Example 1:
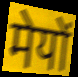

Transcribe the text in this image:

मेयों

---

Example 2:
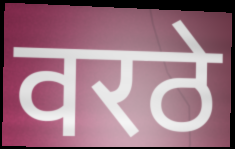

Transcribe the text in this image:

वरठे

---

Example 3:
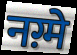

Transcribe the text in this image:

नग़्मे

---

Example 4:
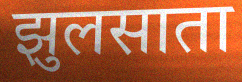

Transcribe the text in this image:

झुलसाता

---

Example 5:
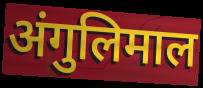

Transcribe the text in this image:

अंगुलिमाल